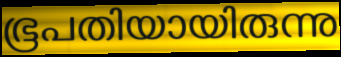
ഭൂപതിയായിരുന്നു